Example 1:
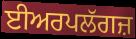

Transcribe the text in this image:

ਈਅਰਪਲੱਗਜ਼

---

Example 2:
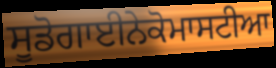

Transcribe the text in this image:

ਸੂਡੋਗਾਈਨੇਕੋਮਾਸਟੀਆ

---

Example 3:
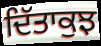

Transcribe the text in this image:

ਦਿੱਤਾਕੁਝ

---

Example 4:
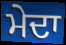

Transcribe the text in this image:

ਮੇਦਾ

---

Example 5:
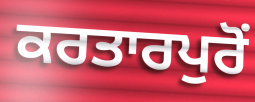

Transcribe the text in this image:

ਕਰਤਾਰਪੁਰੋਂ